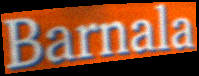
Barnala